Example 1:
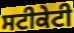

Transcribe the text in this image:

ਸਟੀਕੇਟੀ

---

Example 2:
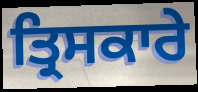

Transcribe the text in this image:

ਤ੍ਰਿਸਕਾਰੇ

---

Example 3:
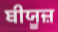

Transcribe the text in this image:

ਬੀਯੂਜ਼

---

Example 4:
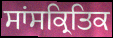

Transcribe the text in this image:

ਸਾਂਸਕ੍ਰਿਤਿਕ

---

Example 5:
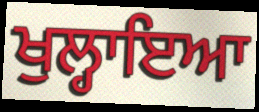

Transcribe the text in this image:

ਖੁਲ੍ਹਾਇਆ